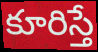
కూరిస్తే